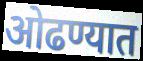
ओढण्यात